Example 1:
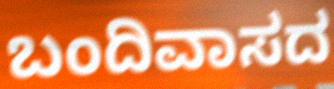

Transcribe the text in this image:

ಬಂದಿವಾಸದ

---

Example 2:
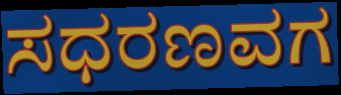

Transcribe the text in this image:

ಸಧರಣವಗ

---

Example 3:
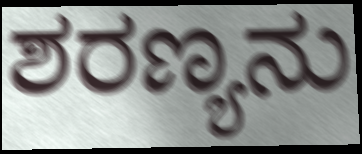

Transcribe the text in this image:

ಶರಣ್ಯನು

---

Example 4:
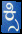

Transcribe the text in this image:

ಕ್ಸಿ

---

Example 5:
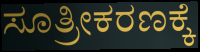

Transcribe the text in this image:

ಸೂತ್ರೀಕರಣಕ್ಕೆ